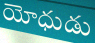
యోధుడు